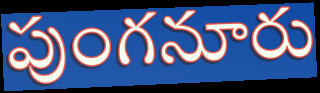
పుంగనూరు